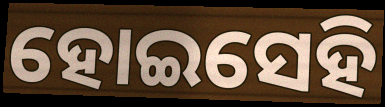
ହୋଇସେହି